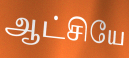
ஆட்சியே